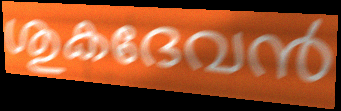
ശുകദേവൻ